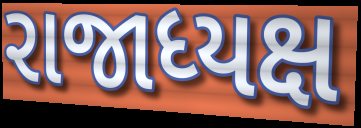
રાજાધ્યક્ષ